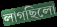
লাগছিলো